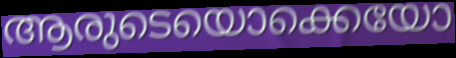
ആരുടെയൊക്കെയോ